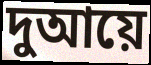
দুআয়ে